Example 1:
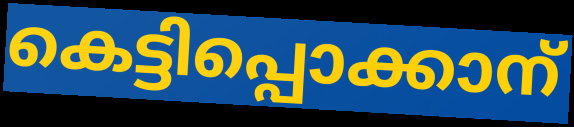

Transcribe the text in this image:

കെട്ടിപ്പൊക്കാന്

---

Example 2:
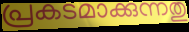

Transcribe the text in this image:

പ്രകടമാക്കുന്നതു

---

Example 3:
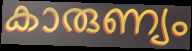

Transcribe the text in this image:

കാരുണ്യം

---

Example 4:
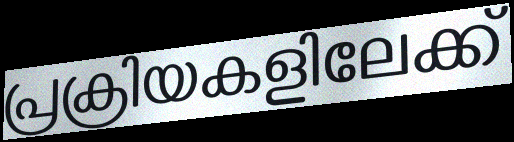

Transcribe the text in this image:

പ്രക്രിയകളിലേക്ക്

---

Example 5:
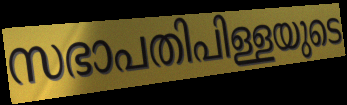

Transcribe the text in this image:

സഭാപതിപിള്ളയുടെ